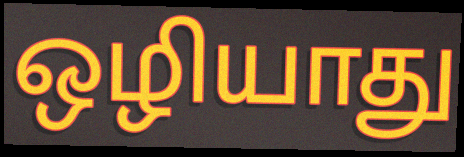
ஒழியாது